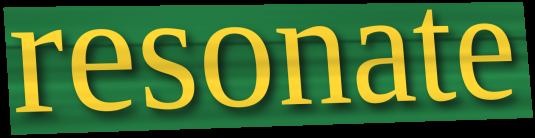
resonate